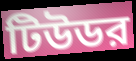
টিউডর